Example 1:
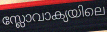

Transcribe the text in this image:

സ്ലോവാക്യയിലെ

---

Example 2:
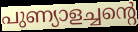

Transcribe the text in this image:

പുണ്യാളച്ചന്റെ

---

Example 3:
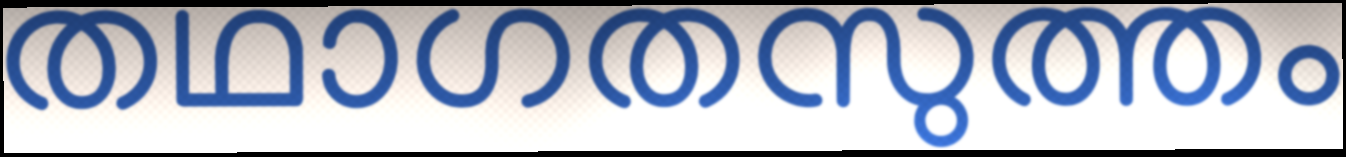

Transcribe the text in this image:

തഥാഗതസുത്തം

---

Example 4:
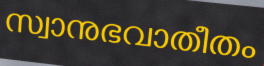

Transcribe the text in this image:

സ്വാനുഭവാതീതം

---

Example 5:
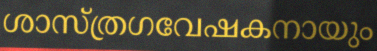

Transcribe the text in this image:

ശാസ്ത്രഗവേഷകനായും